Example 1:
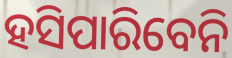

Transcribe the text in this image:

ହସିପାରିବେନି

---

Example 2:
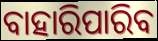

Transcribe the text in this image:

ବାହାରିପାରିବ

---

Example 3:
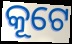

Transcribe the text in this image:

କୂଟେ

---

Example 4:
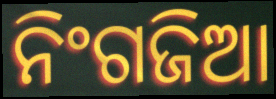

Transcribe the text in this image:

ନିଂଗଜିଆ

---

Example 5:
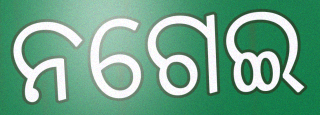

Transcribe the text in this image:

ନଗେଇ